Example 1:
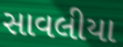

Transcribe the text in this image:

સાવલીયા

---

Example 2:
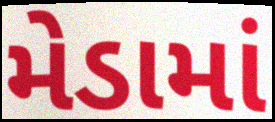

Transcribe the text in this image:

મેડામાં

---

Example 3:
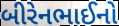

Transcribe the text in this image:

બીરેનભાઈનો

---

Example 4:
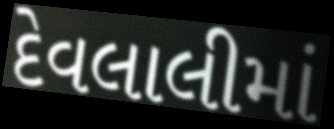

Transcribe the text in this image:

દેવલાલીમાં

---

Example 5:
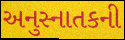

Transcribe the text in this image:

અનુસ્નાતકની